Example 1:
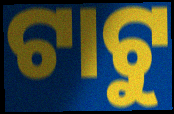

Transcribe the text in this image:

ଟାଟୁ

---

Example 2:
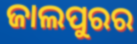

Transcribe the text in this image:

ଜାଲପୁରର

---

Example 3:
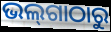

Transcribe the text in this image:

ଭଲ୍‌ଗାଠାରୁ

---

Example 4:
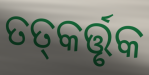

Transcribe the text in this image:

ତତ୍‌କର୍ତ୍ତୃକ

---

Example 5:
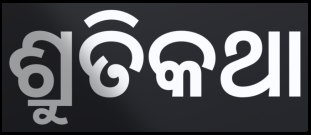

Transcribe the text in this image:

ଶ୍ରୁତିକଥା